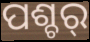
ପଶ୍ଚର୍